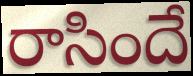
రాసిందే